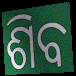
ଶିବ